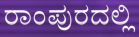
ರಾಂಪುರದಲ್ಲಿ